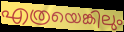
എത്രയെങ്കിലും